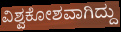
ವಿಶ್ವಕೋಶವಾಗಿದ್ದು